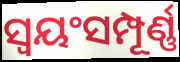
ସ୍ୱୟଂସମ୍ପୂର୍ଣ୍ଣ